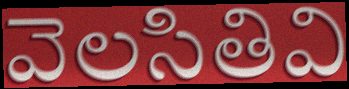
వెలసితివి